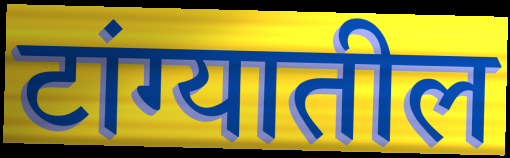
टांग्यातील